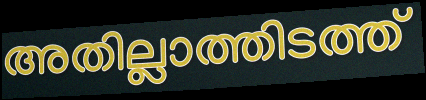
അതില്ലാത്തിടത്ത്